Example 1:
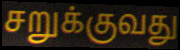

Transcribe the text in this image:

சறுக்குவது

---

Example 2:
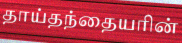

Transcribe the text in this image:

தாய்தந்தையரின்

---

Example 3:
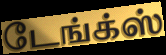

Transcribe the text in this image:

டேங்க்ஸ்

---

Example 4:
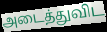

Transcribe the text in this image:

அடைத்துவிட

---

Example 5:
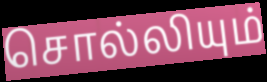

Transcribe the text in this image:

சொல்லியும்